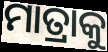
ମାତ୍ରାକୁ